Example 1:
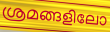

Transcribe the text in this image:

ശ്രമങ്ങളിലോ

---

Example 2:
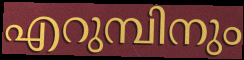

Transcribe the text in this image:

എറുമ്പിനും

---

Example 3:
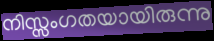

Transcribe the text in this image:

നിസ്സംഗതയായിരുന്നു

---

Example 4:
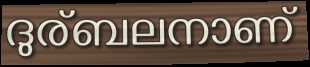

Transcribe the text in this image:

ദുര്ബലനാണ്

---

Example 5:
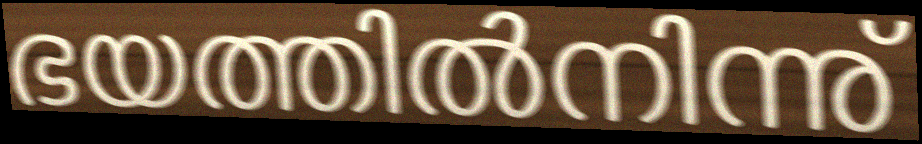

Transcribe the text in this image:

ഭയത്തിൽനിന്നു്